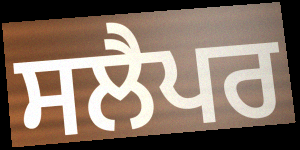
ਸਲੈਪਰ